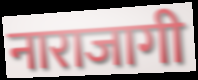
नाराजागी